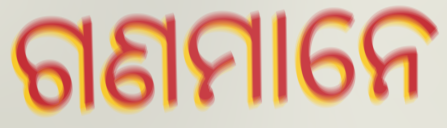
ଗଣମାନେ